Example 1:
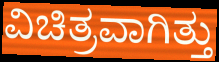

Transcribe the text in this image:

ವಿಚಿತ್ರವಾಗಿತ್ತು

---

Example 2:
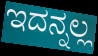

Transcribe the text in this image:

ಇದನ್ನಲ್ಲ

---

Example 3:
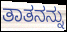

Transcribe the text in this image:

ತಾತನನ್ನು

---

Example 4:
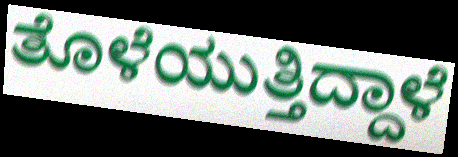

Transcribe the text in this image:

ತೊಳೆಯುತ್ತಿದ್ದಾಳೆ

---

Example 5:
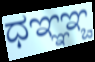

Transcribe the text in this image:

ಧಞ್ಞಞ್ಚ